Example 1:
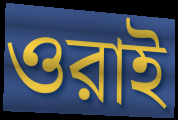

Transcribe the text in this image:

ওরাই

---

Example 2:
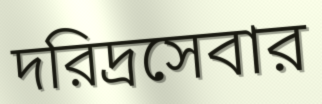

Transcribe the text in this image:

দরিদ্রসেবার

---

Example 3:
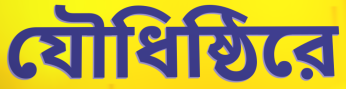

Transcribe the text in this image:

যৌধিষ্ঠিরে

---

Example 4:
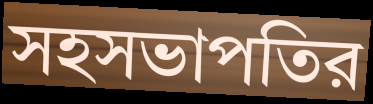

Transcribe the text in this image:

সহসভাপতির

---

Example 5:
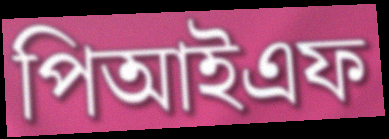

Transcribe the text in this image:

পিআইএফ